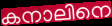
കനാലിനെ